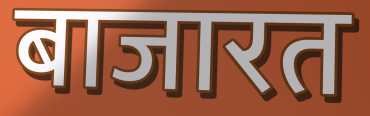
बाजारत